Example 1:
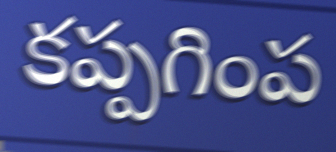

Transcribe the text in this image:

కప్పగింప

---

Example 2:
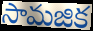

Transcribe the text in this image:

సామజిక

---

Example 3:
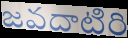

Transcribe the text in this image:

జవదాటిరి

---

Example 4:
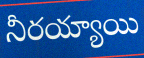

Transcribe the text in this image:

నీరయ్యాయి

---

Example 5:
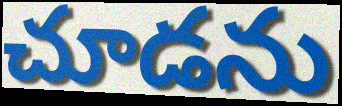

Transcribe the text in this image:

చూడను